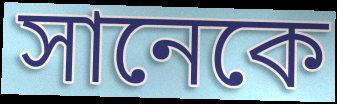
সানেকে